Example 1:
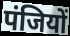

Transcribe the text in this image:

पंजियों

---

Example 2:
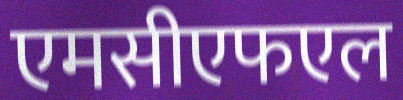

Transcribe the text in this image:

एमसीएफएल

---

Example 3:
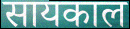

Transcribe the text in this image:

सायकाल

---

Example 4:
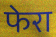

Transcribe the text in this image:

फेरा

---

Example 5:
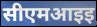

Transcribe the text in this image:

सीएमआइइ